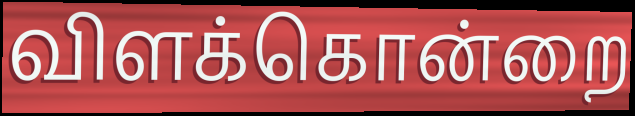
விளக்கொன்றை